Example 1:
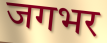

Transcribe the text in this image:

जगभर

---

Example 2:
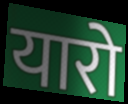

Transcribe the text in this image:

यारो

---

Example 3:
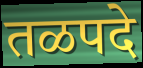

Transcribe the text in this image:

तळपदे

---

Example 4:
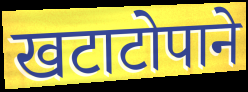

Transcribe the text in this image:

खटाटोपाने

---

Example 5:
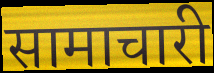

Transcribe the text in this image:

सामाचारी